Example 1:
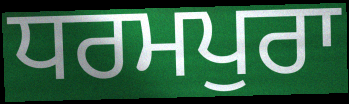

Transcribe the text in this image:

ਧਰਮਪੁਰਾ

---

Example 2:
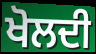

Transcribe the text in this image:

ਖੋਲਦੀ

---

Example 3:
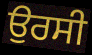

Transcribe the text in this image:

ਉਰਸੀ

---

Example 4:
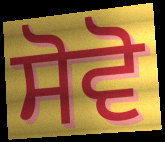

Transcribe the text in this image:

ਸੋਵੋ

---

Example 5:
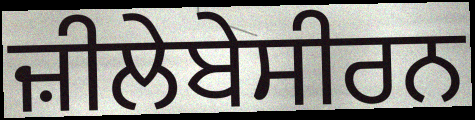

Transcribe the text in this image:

ਜ਼ੀਲੇਬੇਸੀਰਨ